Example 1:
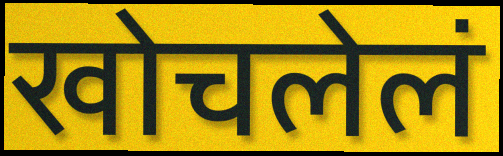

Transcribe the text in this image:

खोचलेलं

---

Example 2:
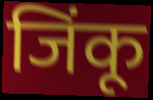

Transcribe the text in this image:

जिंकू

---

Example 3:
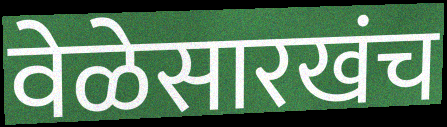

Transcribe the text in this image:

वेळेसारखंच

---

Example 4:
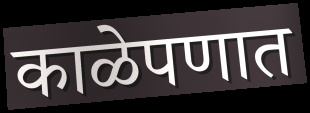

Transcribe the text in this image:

काळेपणात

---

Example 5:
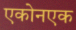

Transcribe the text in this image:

एकोनएक